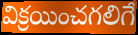
విక్రయించగలిగే